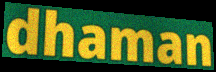
dhaman